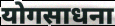
योगसाधना